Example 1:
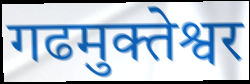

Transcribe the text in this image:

गढमुक्तेश्वर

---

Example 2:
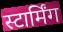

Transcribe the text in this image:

स्टार्मिंग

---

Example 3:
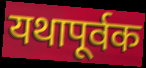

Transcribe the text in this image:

यथापूर्वक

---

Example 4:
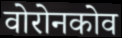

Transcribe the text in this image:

वोरोनकोव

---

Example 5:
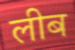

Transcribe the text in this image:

लीब